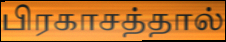
பிரகாசத்தால்